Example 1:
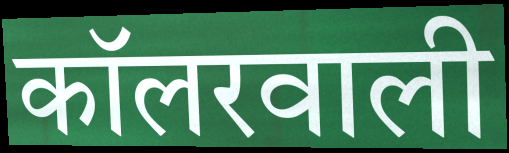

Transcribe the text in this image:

कॉलरवाली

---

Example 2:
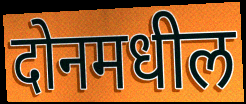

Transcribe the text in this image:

दोनमधील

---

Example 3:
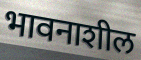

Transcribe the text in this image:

भावनाशील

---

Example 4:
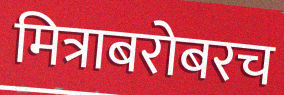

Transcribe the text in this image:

मित्राबरोबरच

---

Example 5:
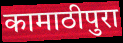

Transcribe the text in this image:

कामाठीपुरा